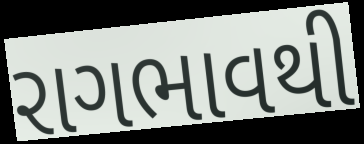
રાગભાવથી